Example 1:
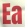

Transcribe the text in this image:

Ea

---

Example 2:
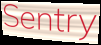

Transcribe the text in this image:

Sentry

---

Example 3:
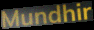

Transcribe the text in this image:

Mundhir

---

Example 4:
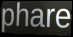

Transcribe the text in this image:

phare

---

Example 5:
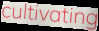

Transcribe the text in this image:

cultivating